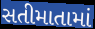
સતીમાતામાં